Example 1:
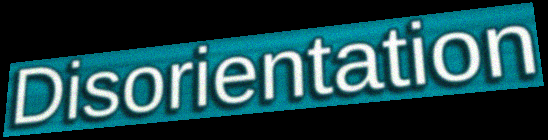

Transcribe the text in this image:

Disorientation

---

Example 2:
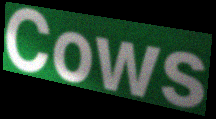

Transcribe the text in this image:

Cows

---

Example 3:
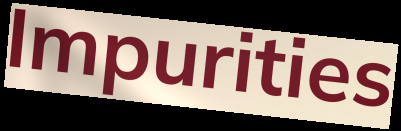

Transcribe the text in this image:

Impurities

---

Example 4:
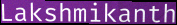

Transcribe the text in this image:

Lakshmikanth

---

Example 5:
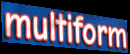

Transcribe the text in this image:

multiform